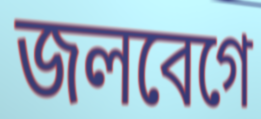
জলবেগে